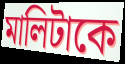
মালিটাকে